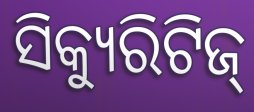
ସିକ୍ୟୁରିଟିଜ୍